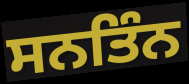
ਸਨਤਿੰਨ